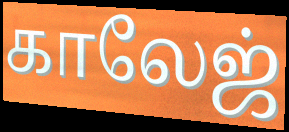
காலேஜ்